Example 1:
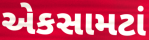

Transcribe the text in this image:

એકસામટાં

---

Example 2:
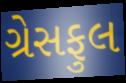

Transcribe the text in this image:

ગ્રેસફુલ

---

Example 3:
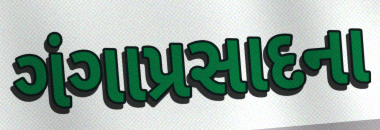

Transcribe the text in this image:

ગંગાપ્રસાદના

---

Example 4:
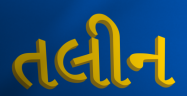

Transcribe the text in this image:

તલીન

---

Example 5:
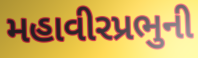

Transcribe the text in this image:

મહાવીરપ્રભુની